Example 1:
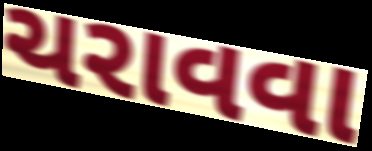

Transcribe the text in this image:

ચરાવવા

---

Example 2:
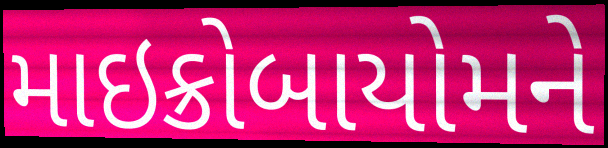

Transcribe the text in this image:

માઇક્રોબાયોમને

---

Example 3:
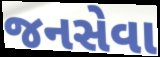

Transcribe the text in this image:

જનસેવા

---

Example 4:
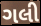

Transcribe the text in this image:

ગલી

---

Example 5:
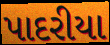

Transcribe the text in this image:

પાદરીયા